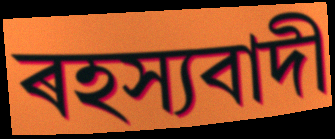
ৰহস্যবাদী